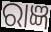
ରାଜ୍ଞ